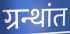
ग्रन्थांत